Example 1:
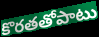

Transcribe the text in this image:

కొరతతోపాటు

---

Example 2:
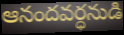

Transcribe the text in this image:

ఆనందవర్ధనుడి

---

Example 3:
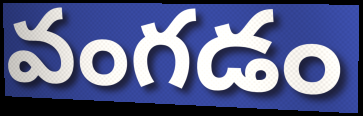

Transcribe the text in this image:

వంగడం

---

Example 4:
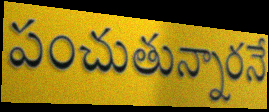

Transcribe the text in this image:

పంచుతున్నారనే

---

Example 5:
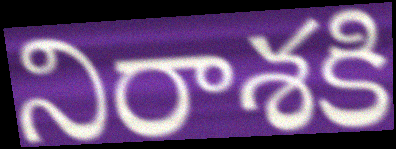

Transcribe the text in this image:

నిరాశకి